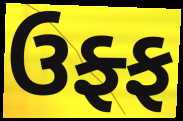
ઉફ્ફ